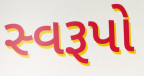
સ્વરૂપો